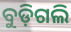
ବୁଡ଼ିଗଲି